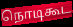
நொடிகூட